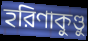
হরিণাকুণ্ডু